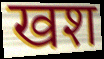
खश